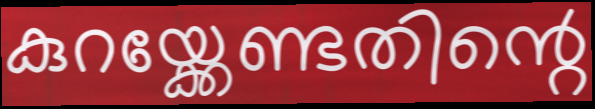
കുറയ്ക്കേണ്ടതിന്റെ